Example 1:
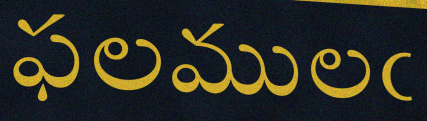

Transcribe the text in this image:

ఫలములఁ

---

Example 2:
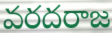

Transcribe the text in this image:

వరదరాజ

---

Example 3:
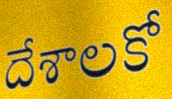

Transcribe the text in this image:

దేశాలకో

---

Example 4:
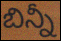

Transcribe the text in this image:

బిన్నీ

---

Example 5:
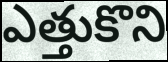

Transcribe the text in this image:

ఎత్తుకొని